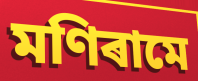
মণিৰামে